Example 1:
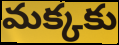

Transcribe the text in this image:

మక్కకు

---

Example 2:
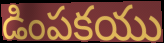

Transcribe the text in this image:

డింపకయు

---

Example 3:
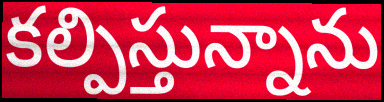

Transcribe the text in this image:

కల్పిస్తున్నాను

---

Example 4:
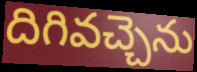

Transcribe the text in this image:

దిగివచ్చెను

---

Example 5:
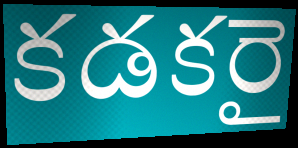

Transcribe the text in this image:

కడకరై